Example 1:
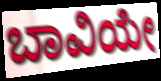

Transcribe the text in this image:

ಬಾವಿಯೇ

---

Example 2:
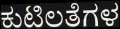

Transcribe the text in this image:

ಕುಟಿಲತೆಗಳ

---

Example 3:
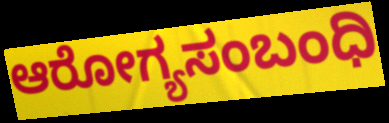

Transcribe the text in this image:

ಆರೋಗ್ಯಸಂಬಂಧಿ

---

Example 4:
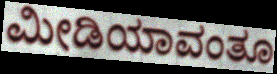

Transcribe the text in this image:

ಮೀಡಿಯಾವಂತೂ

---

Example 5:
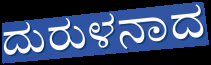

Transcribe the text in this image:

ದುರುಳನಾದ